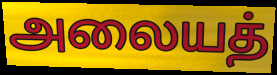
அலையத்